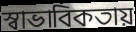
স্বাভাবিকতায়